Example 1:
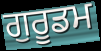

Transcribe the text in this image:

ਗੁਰੂਡਮ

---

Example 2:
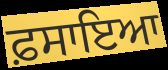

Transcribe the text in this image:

ਫ਼ਸਾਇਆ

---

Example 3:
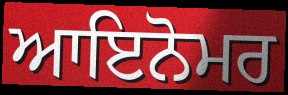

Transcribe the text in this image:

ਆਇਨੋਮਰ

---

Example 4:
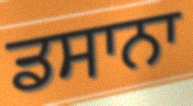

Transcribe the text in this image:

ਡਸਾਨਾ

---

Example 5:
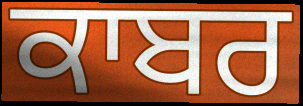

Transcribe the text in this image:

ਕਾਬਰ